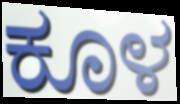
ಕೂಳ